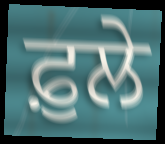
ਫ਼ੁਲੇ